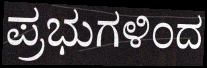
ಪ್ರಭುಗಳಿಂದ